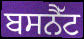
ਬਸਨੈੱਟ